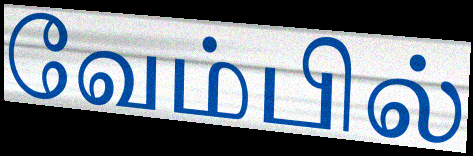
வேம்பில்